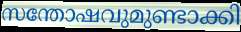
സന്തോഷവുമുണ്ടാക്കി